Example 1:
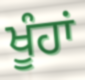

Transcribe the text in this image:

ਖੂੰਹਾਂ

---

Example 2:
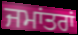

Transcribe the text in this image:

ਜਮਾਂਤਰਾਂ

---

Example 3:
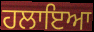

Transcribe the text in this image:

ਹਲਾਇਆ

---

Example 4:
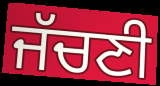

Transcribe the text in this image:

ਜੱਚਣੀ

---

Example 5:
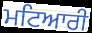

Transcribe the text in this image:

ਮਟਿਆਰੀ